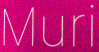
Muri